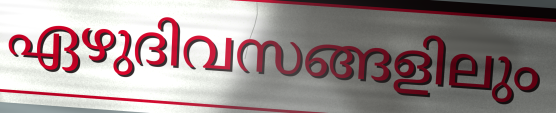
ഏഴുദിവസങ്ങളിലും